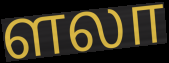
ளலா